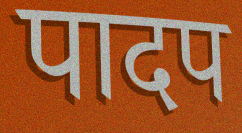
पादप